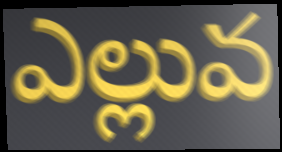
ఎల్లువ